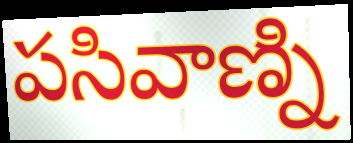
పసివాణ్ని